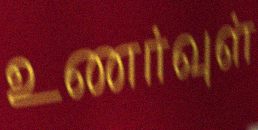
உணர்வுள்